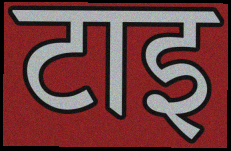
टाइ